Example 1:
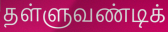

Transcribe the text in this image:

தள்ளுவண்டிக்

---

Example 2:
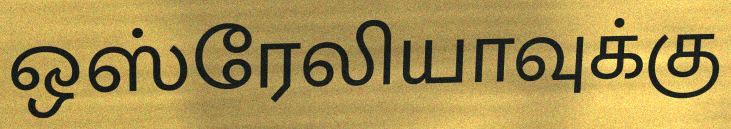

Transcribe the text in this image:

ஒஸ்ரேலியாவுக்கு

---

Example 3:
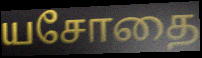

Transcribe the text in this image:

யசோதை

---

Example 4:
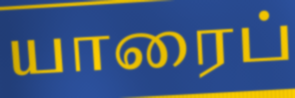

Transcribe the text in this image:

யாரைப்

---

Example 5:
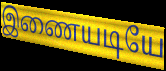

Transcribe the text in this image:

இணையடியே